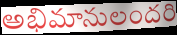
అభిమానులందరి